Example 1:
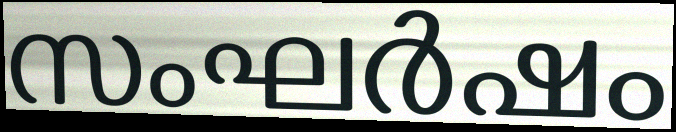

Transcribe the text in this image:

സംഘർഷം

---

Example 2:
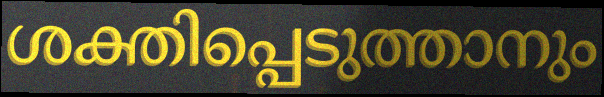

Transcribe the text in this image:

ശക്തിപ്പെടുത്താനും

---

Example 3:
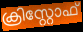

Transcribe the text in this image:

ക്രിസ്റ്റോഫ്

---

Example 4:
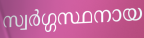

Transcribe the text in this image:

സ്വർഗ്ഗസ്ഥനായ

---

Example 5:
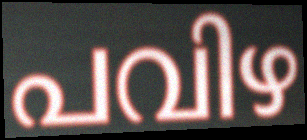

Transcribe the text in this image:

പവിഴ